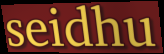
seidhu